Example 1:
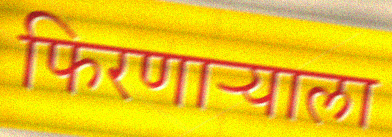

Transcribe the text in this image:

फिरणाऱ्याला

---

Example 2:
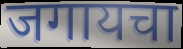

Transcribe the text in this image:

जगायचा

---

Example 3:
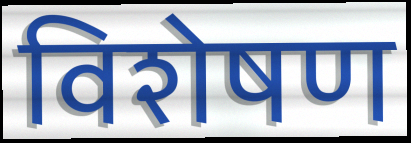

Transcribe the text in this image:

विशेषण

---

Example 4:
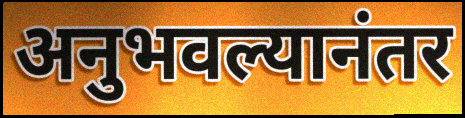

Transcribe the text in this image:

अनुभवल्यानंतर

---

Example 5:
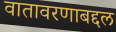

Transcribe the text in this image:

वातावरणाबद्दल